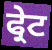
ਫ੍ਰੇਟ